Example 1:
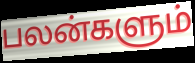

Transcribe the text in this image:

பலன்களும்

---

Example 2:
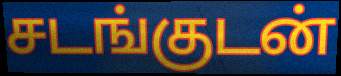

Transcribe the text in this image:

சடங்குடன்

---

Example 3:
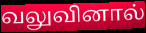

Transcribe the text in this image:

வலுவினால்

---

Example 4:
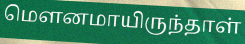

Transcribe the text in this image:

மௌனமாயிருந்தாள்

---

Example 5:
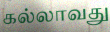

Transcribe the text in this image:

கல்லாவது